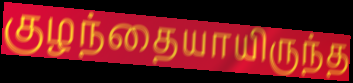
குழந்தையாயிருந்த